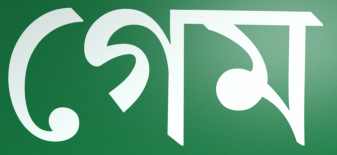
গেম